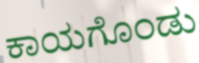
ಕಾಯಗೊಂಡು